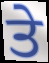
ਤੇ